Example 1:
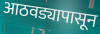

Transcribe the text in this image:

आठवड्यापासून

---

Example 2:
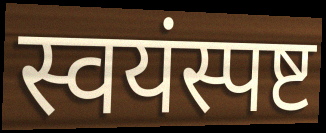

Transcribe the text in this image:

स्वयंस्पष्ट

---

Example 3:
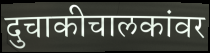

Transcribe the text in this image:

दुचाकीचालकांवर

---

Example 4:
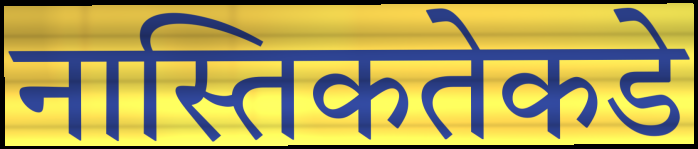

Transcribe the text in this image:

नास्तिकतेकडे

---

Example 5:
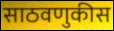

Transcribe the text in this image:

साठवणुकीस